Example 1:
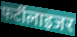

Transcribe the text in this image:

फर्टीलाइजर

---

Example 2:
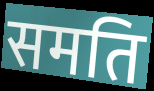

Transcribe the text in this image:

समति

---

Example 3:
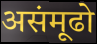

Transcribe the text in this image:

असंमूढो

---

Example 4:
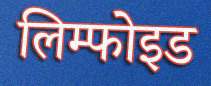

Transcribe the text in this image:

लिम्फोइड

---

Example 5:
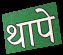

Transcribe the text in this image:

थापे